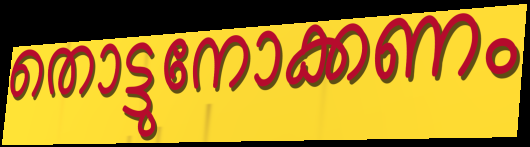
തൊട്ടുനോക്കണം